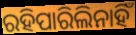
ରହିପାରିଲିନାହିଁ